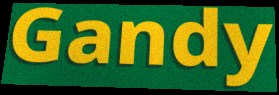
Gandy